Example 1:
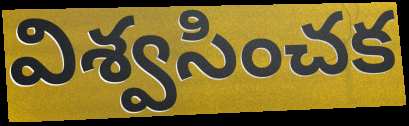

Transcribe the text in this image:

విశ్వసించక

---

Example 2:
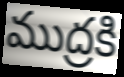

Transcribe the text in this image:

ముద్రకి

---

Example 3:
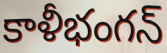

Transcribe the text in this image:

కాళీభంగన్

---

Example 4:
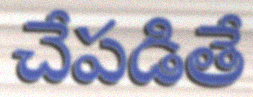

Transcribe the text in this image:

చేపడితే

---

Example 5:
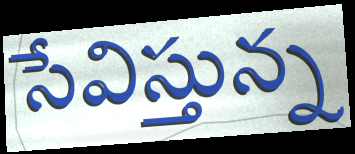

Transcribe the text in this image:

సేవిస్తున్న